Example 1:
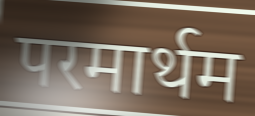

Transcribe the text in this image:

परमार्थम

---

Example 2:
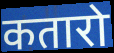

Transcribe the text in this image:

कतारो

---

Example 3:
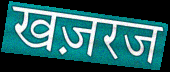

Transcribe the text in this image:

खज़रज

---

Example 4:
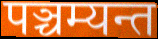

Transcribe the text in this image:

पञ्चम्यन्त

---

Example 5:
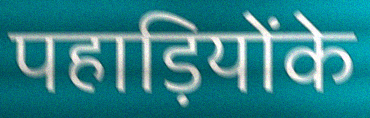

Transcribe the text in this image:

पहाड़ियोंके